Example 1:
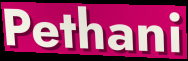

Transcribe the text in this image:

Pethani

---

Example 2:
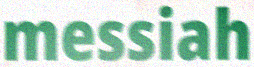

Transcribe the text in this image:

messiah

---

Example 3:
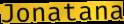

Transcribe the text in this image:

Jonatana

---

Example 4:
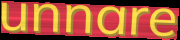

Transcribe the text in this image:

unnare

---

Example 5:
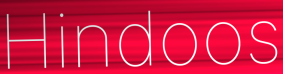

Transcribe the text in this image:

Hindoos